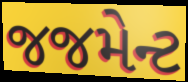
જજમેન્ટ